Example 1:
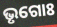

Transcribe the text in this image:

ଭୃଗୋଃ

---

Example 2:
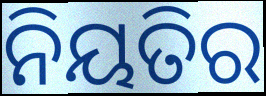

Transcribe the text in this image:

ନିୟତିର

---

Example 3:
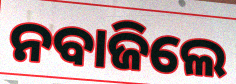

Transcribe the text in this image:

ନବାଜିଲେ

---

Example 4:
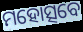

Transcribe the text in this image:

ମହୋତ୍ସବେ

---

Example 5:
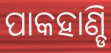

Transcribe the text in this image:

ପାକହାଣ୍ଡି